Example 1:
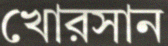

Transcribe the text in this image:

খোরসান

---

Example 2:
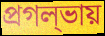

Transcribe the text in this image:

প্রগল্‌ভায়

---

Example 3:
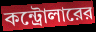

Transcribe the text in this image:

কন্ট্রোলারের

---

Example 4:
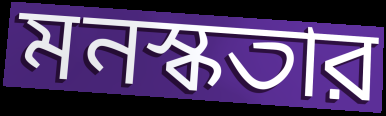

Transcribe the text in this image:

মনস্কতার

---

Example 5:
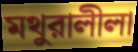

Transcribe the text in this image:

মথুরালীলা